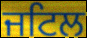
ਜਟਿਲ